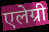
एलेग्री